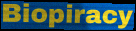
Biopiracy